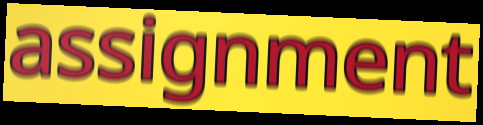
assignment